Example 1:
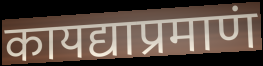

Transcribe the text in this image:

कायद्याप्रमाणं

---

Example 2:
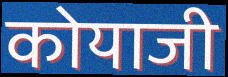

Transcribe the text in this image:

कोयाजी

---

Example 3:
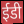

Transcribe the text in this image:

ईडी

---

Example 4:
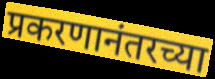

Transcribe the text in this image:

प्रकरणानंतरच्या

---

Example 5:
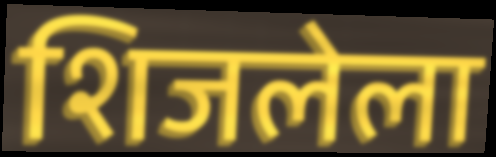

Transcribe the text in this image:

शिजलेला